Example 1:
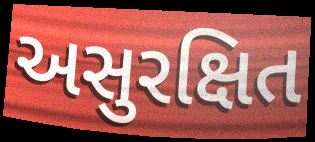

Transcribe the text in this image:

અસુરક્ષિત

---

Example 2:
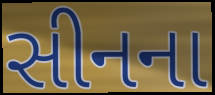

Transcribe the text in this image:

સીનના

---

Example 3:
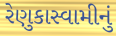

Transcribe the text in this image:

રેણુકાસ્વામીનું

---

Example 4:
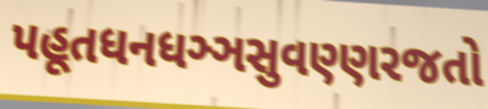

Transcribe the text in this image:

પહૂતધનધઞ્ઞસુવણ્ણરજતો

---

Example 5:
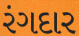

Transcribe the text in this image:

રંગદાર